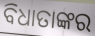
ବିଧାତାଙ୍କର